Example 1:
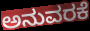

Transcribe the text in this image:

ಅನುವರಕೆ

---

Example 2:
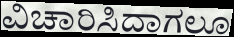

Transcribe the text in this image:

ವಿಚಾರಿಸಿದಾಗಲೂ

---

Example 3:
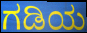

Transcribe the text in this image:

ಗಡಿಯ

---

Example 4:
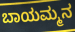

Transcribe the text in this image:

ಬಾಯಮ್ಮನ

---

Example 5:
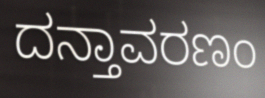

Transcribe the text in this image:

ದನ್ತಾವರಣಂ